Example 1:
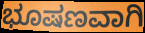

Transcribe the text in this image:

ಭೂಷಣವಾಗಿ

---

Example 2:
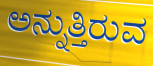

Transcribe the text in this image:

ಅನ್ನುತ್ತಿರುವ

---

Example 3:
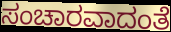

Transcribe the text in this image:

ಸಂಚಾರವಾದಂತೆ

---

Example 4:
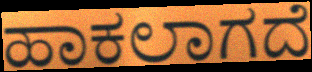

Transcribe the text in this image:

ಹಾಕಲಾಗದೆ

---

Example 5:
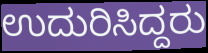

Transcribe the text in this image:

ಉದುರಿಸಿದ್ದರು